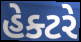
હેક્ટરે